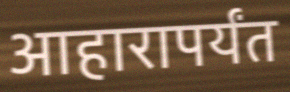
आहारापर्यंत